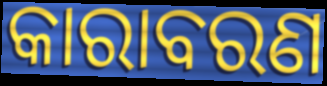
କାରାବରଣ